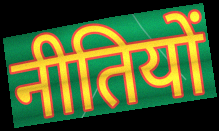
नीतियों